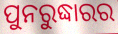
ପୁନରୁଦ୍ଧାରର